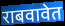
राबवावेत